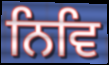
ਨਿਵਿ